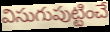
విసుగుపుట్టించే